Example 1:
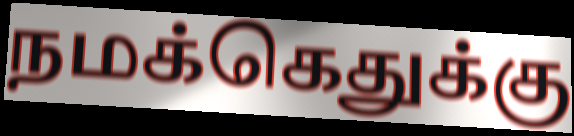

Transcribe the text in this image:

நமக்கெதுக்கு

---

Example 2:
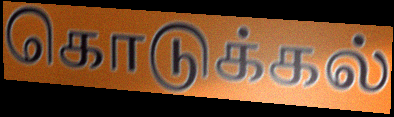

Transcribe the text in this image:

கொடுக்கல்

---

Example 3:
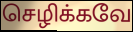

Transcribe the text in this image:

செழிக்கவே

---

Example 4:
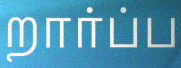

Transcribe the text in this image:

றார்ப்ப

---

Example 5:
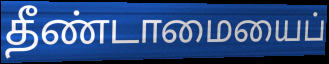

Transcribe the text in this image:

தீண்டாமையைப்